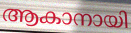
ആകാനായി